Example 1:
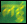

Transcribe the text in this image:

लहुं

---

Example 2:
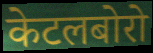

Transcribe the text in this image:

केटलबोरो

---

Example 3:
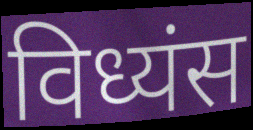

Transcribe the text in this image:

विध्यंस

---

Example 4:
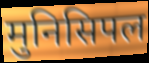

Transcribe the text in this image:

मुनिसिपल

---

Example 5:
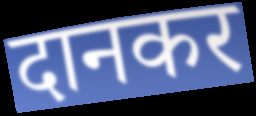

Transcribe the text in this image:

दानकर